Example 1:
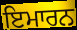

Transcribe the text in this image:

ਇਮਾਰਨ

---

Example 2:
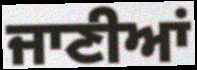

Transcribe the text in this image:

ਜਾਣੀਆਂ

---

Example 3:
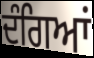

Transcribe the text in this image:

ਦੰਗਿਆਂ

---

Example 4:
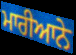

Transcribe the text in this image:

ਮਾਰੀਆਨੇ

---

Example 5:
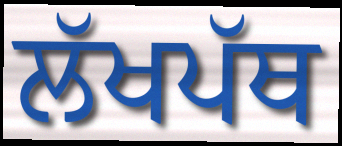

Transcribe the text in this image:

ਲੱਖਪੱਥ